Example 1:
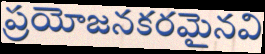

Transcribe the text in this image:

ప్రయోజనకరమైనవి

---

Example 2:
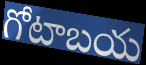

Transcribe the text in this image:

గోటాబయ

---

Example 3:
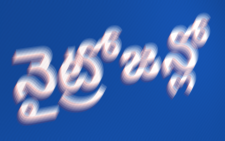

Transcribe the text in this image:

నైట్రోజన్లో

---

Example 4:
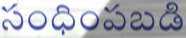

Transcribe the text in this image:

సంధింపబడి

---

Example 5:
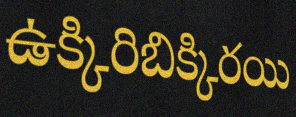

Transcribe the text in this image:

ఉక్కిరిబిక్కిరయి